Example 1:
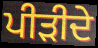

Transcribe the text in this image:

ਪੀੜੀਦੇ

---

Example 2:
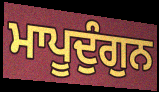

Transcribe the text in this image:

ਮਾਪੂਦੁੰਗੁਨ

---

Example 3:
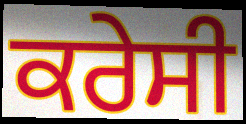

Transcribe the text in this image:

ਕਰੇਸੀ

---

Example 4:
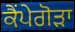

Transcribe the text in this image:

ਕੈਂਪੇਗੋੜਾ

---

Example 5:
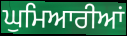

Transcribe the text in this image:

ਘੁਮਿਆਰੀਆਂ